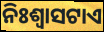
ନିଃଶ୍ଵାସଟାଏ